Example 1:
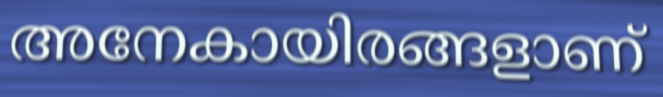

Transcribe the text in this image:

അനേകായിരങ്ങളാണ്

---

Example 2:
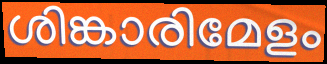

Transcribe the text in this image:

ശിങ്കാരിമേളം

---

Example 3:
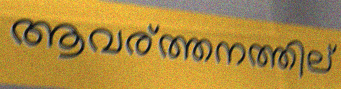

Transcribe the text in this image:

ആവര്ത്തനത്തില്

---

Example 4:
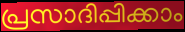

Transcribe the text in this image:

പ്രസാദിപ്പിക്കാം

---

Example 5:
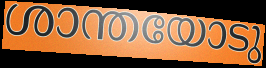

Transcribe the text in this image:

ശാന്തയോടു